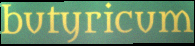
butyricum